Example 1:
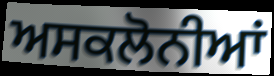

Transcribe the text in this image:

ਅਸਕਲੋਨੀਆਂ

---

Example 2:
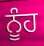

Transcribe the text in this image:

ਨੂੰਹ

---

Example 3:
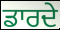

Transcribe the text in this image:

ਡਾਰਦੇ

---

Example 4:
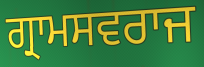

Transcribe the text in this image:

ਗ੍ਰਾਮਸਵਰਾਜ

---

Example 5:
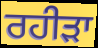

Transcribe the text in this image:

ਰਹੀੜਾ